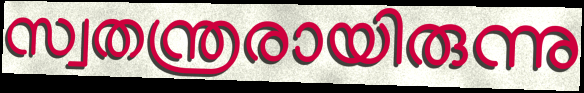
സ്വതന്ത്രരായിരുന്നു